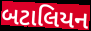
બટાલિયન